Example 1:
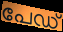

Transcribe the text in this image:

പേഡ്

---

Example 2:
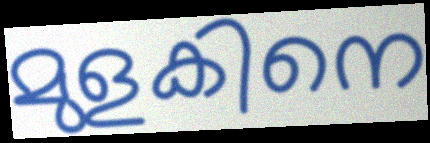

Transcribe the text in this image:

മുളകിനെ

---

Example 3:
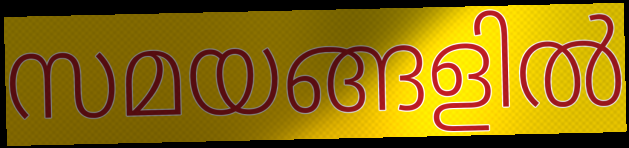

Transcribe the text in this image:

സമയങ്ങളിൽ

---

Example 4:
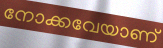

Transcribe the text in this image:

നോക്കവേയാണ്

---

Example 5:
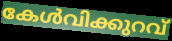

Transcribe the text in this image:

കേൾവിക്കുറവ്